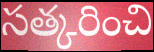
సత్కరించి